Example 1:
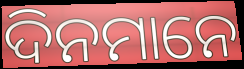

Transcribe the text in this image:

ଦିନମାନେ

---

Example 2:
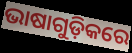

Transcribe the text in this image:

ଭାଷାଗୁଡ଼ିକରେ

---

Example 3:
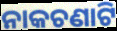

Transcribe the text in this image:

ନାକଚଣାଟି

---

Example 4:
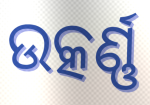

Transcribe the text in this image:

ଉତ୍କର୍ଣ୍ଣ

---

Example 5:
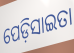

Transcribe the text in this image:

ପେଡ଼ିସାଇତା